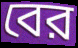
বের